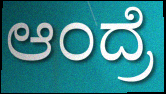
ಆಂದ್ರೆ